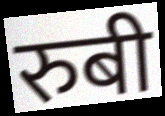
रुबी